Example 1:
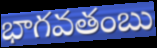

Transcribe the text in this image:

భాగవతంబు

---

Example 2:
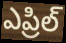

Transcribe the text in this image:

ఎప్రిల్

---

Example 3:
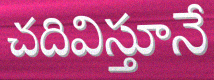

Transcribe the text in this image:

చదివిస్తూనే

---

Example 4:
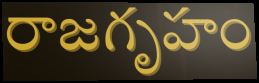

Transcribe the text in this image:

రాజగృహం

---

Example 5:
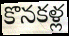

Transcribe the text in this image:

కొనకళ్ల